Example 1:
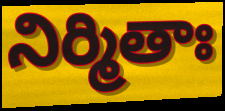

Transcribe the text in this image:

నిర్మితాః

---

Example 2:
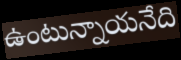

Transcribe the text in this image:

ఉంటున్నాయనేది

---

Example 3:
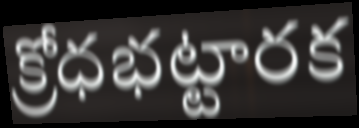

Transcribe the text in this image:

క్రోధభట్టారక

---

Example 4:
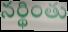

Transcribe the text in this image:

నర్థింతు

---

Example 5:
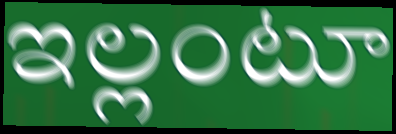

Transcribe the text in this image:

ఇల్లంటూ